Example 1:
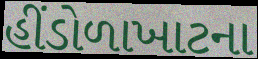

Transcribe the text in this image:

હીંડોળાખાટના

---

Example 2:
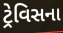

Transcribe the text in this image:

ટ્રેવિસના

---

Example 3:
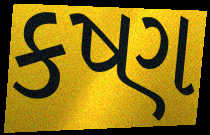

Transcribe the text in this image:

કષ્ણ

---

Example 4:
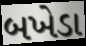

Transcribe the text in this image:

બખેડા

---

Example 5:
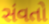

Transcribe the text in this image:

સંવતો